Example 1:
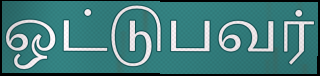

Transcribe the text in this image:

ஒட்டுபவர்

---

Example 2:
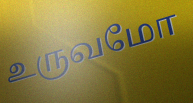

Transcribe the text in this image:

உருவமோ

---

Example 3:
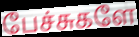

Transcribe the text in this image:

பேச்சுகளே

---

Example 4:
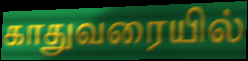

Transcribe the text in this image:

காதுவரையில்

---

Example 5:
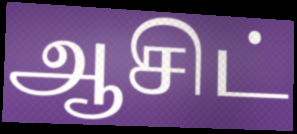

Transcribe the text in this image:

ஆசிட்